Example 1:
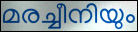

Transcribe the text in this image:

മരച്ചീനിയും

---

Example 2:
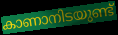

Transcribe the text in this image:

കാണാനിടയുണ്ട്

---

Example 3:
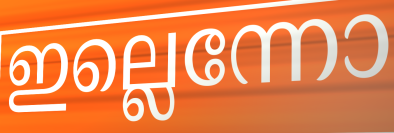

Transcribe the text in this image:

ഇല്ലെന്നോ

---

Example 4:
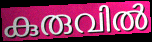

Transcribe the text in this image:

കുരുവിൽ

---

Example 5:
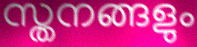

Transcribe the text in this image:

സ്തനങ്ങളും